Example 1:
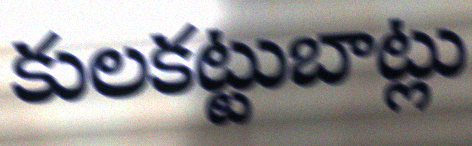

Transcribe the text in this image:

కులకట్టుబాట్లు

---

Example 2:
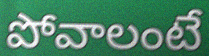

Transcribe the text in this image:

పోవాలంటే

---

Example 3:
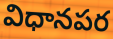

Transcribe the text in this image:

విధానపర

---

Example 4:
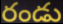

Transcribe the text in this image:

రండు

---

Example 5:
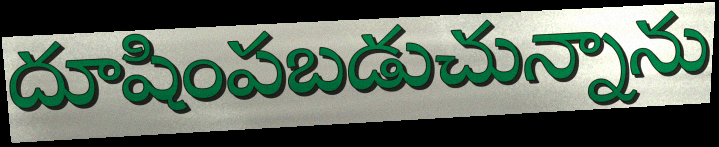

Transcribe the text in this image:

దూషింపబడుచున్నాను